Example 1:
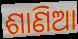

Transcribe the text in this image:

ଶାଣିଆ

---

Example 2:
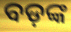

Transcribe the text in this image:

ବଡ଼ଙ୍କ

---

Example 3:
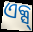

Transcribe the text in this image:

ଏକ୍ସ୍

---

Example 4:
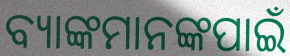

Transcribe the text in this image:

ବ୍ୟାଙ୍କମାନଙ୍କପାଇଁ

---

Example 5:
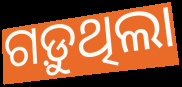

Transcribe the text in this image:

ଗଡ଼ୁଥିଲା